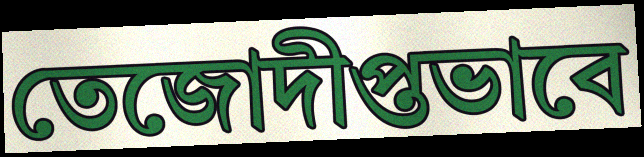
তেজোদীপ্তভাবে